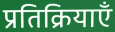
प्रतिक्रियाएँ